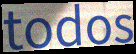
todos